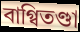
বাগ্বিতণ্ডা